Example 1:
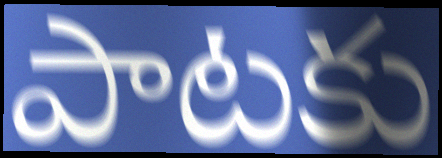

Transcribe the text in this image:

పాటకు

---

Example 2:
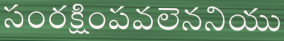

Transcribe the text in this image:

సంరక్షింపవలెననియు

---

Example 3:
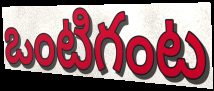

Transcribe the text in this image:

ఒంటిగంట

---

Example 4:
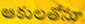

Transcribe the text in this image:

ఆకులతోనూ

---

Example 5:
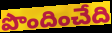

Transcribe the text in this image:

పొందించేది